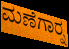
ಮಣೆಗಾರ್‍ನ